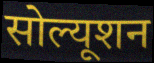
सोल्यूशन